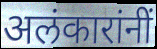
अलंकारांनीं